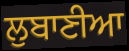
ਲੁਬਾਣੀਆ